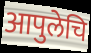
आपुलेचि